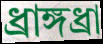
ধ্রাঙ্গধ্রা